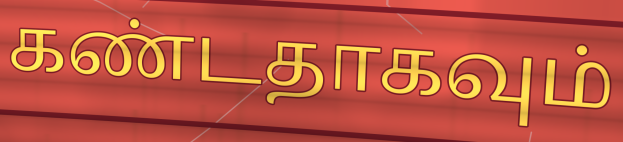
கண்டதாகவும்